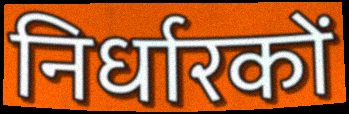
निर्धारकों